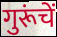
गुरूंचें